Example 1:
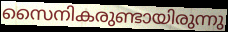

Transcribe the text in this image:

സൈനികരുണ്ടായിരുന്നു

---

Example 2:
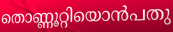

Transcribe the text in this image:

തൊണ്ണൂറ്റിയൊൻപതു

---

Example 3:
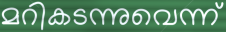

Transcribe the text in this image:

മറികടന്നുവെന്ന്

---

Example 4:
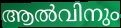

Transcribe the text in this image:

ആൽവിനും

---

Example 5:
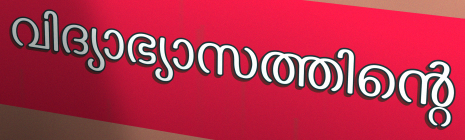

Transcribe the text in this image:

വിദ്യാഭ്യാസത്തിന്റെ